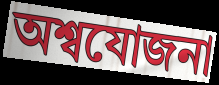
অশ্বযোজনা